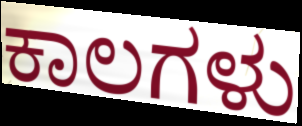
ಕಾಲಗಳು